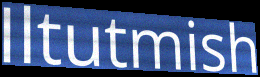
Iltutmish